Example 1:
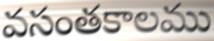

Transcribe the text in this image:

వసంతకాలము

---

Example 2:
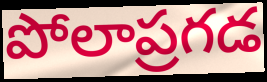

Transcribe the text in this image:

పోలాప్రగడ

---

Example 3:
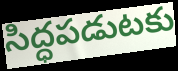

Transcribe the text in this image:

సిద్ధపడుటకు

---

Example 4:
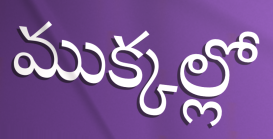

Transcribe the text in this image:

ముక్కల్లో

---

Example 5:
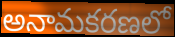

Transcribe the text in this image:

అనామకరణలో